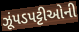
ઝૂંપડપટ્ટીઓની